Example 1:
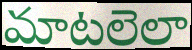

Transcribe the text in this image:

మాటలెలా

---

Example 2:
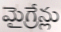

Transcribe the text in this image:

మైగ్రేన్లు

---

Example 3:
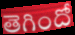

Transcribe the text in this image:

తెగిందో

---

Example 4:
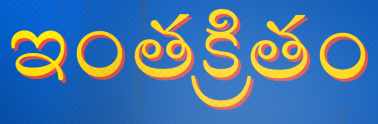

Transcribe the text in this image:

ఇంతక్రితం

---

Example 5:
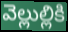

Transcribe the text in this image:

వెల్లుల్లికి